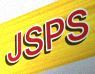
JSPS